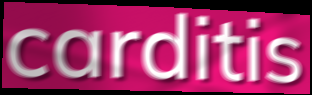
carditis